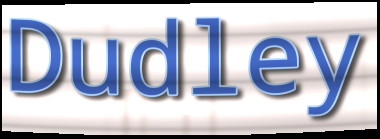
Dudley